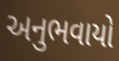
અનુભવાયો